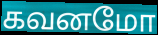
கவனமோ